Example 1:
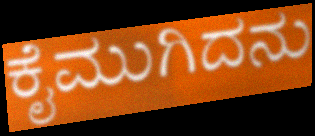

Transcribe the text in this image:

ಕೈಮುಗಿದನು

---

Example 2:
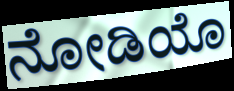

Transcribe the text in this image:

ನೋಡಿಯೊ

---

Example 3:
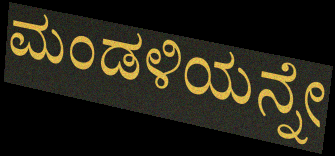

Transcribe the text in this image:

ಮಂಡಳಿಯನ್ನೇ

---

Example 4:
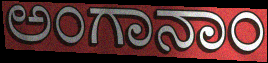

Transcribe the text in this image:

ಅಂಗಾನಾಂ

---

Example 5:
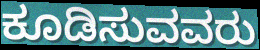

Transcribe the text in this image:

ಕೂಡಿಸುವವರು